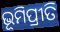
ଭୂମିପ୍ରୀତି